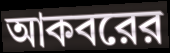
আকবরের